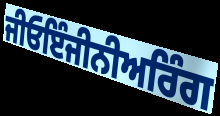
ਜੀਓਇੰਜੀਨੀਅਰਿੰਗ